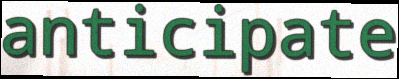
anticipate